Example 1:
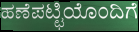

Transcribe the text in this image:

ಹಣೆಪಟ್ಟಿಯೊಂದಿಗೆ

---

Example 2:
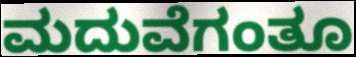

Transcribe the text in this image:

ಮದುವೆಗಂತೂ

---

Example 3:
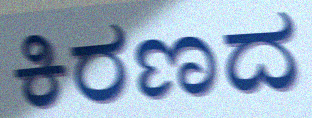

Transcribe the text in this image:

ಕಿರಣದ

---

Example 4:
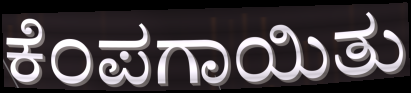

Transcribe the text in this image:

ಕೆಂಪಗಾಯಿತು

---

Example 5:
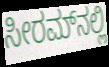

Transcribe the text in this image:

ಸೀರಮ್‌ನಲ್ಲಿ